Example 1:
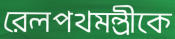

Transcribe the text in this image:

রেলপথমন্ত্রীকে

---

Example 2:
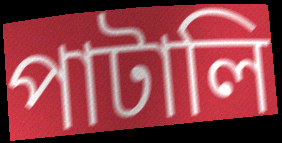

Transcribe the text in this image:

পাটালি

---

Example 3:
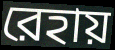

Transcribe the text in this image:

রেহায়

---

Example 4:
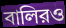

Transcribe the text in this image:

বালিরও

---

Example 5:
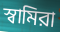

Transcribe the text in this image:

স্বামিরা